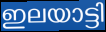
ഇലയാട്ടി